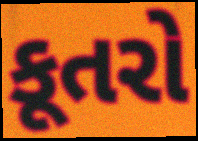
કૂતરો